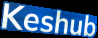
Keshub